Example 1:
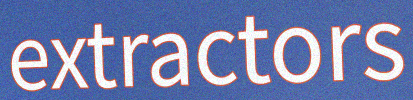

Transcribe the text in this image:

extractors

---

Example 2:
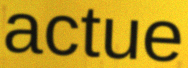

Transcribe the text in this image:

actue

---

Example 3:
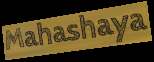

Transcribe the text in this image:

Mahashaya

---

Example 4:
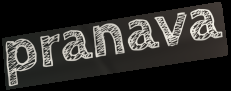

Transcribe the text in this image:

pranava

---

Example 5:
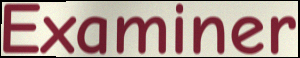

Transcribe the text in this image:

Examiner